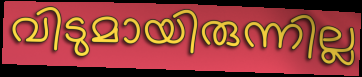
വിടുമായിരുന്നില്ല